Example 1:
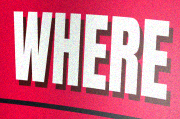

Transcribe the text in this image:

WHERE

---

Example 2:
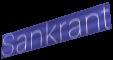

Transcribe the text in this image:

Sankrant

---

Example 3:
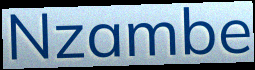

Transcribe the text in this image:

Nzambe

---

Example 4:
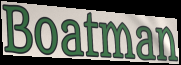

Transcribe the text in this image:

Boatman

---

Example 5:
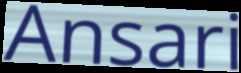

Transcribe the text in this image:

Ansari